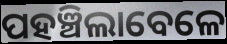
ପହଞ୍ଚିଲାବେଳେ